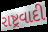
રાષ્ટ્રવાદી